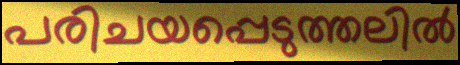
പരിചയപ്പെടുത്തലിൽ